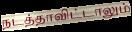
நடத்தாவிட்டாலும்